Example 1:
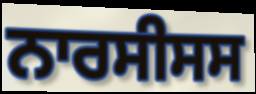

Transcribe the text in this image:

ਨਾਰਸੀਸਸ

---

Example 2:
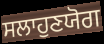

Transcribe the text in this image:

ਸਲਾਹੁਣਯੋਗ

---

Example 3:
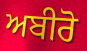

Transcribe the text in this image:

ਅਬੀਰੋ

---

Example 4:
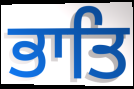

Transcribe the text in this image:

ਭਾਤਿ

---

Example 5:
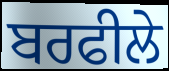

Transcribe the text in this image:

ਬਰਫੀਲੇ